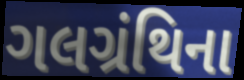
ગલગ્રંથિના